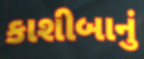
કાશીબાનું